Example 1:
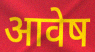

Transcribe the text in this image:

आवेष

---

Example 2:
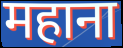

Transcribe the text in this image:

महाना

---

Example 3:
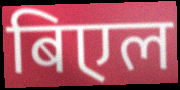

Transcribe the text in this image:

बिएल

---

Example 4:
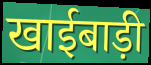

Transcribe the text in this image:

खाईबाड़ी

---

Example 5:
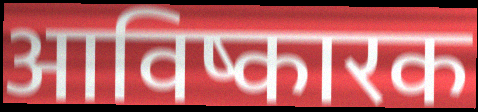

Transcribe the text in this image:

आविष्कारक